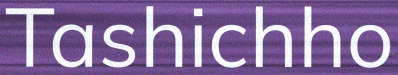
Tashichho